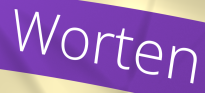
Worten